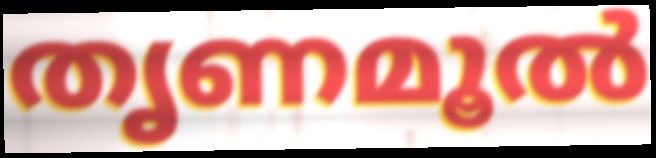
തൃണമൂൽ